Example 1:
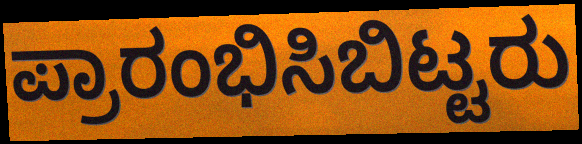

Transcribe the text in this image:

ಪ್ರಾರಂಭಿಸಿಬಿಟ್ಟರು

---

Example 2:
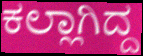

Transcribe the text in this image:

ಕಲ್ಲಾಗಿದ್ದ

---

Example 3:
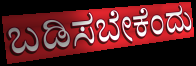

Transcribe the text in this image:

ಬಡಿಸಬೇಕೆಂದು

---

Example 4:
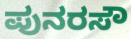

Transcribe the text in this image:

ಪುನರಸೌ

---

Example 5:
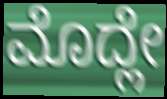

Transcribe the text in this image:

ಮೊದ್ಲೇ